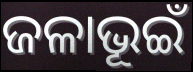
ଜଳାଭୂଇଁ